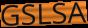
GSLSA